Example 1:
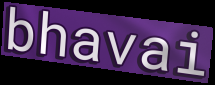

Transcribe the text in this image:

bhavai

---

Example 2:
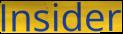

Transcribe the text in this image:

Insider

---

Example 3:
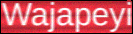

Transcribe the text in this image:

Wajapeyi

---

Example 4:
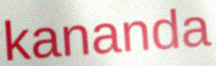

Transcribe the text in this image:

kananda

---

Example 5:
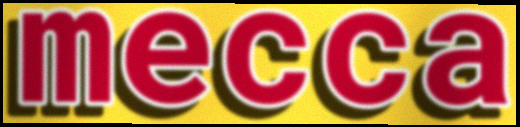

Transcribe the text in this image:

mecca